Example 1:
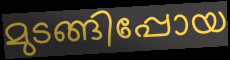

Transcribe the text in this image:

മുടങ്ങിപ്പോയ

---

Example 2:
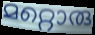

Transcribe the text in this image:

മറ്റൊരു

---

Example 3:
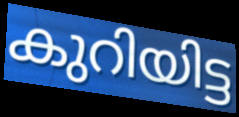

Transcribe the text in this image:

കുറിയിട്ട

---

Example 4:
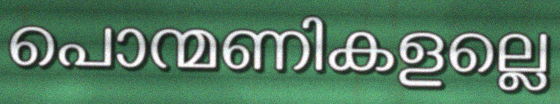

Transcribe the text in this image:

പൊന്മണികളല്ലെ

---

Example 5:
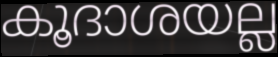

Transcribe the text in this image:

കൂദാശയല്ല